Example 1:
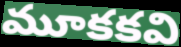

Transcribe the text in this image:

మూకకవి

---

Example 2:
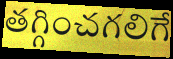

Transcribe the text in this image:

తగ్గించగలిగే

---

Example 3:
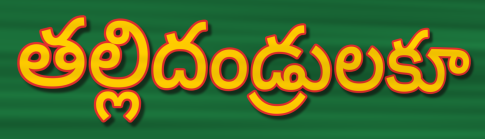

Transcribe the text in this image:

తల్లిదండ్రులకూ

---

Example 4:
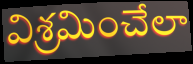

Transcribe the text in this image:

విశ్రమించేలా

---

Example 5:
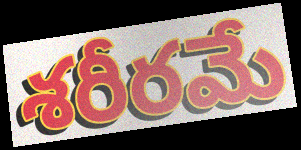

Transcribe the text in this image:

శరీరమే